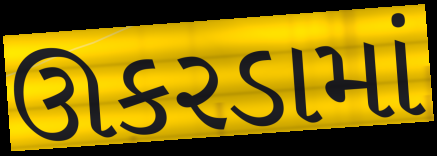
ઊકરડામાં